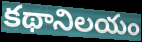
కథానిలయం